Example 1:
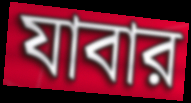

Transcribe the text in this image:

যাবার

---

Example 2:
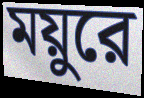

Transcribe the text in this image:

ময়ুরে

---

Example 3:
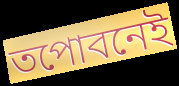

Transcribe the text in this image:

তপোবনেই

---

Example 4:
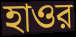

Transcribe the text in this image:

হাওর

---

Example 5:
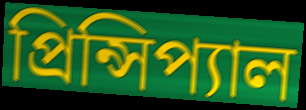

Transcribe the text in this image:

প্রিন্সিপ্যাল